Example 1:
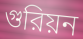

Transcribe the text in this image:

গুরিয়ন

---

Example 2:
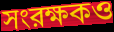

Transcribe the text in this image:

সংরক্ষকও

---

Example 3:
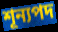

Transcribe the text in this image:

শূন্যপদ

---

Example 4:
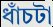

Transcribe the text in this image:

ধাঁচটা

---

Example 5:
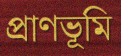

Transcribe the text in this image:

প্রাণভূমি